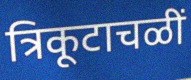
त्रिकूटाचळीं